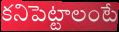
కనిపెట్టాలంటే